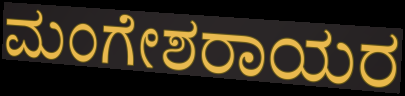
ಮಂಗೇಶರಾಯರ